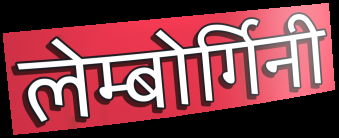
लेम्बोर्गिनी